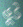
હૂડે